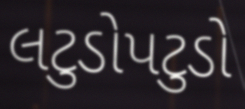
લટુડોપટુડો